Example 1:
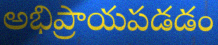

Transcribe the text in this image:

అభిప్రాయపడడం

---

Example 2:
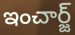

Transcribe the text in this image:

ఇంచార్జ్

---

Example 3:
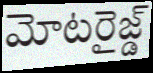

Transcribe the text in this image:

మోటరైజ్డ్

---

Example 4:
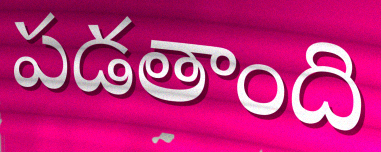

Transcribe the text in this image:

పడతాంది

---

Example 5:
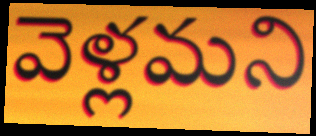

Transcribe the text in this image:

వెళ్లమని